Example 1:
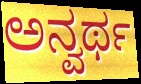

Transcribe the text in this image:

ಅನ್ವರ್ಥ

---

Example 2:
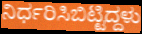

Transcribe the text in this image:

ನಿರ್ಧರಿಸಿಬಿಟ್ಟಿದ್ದಳು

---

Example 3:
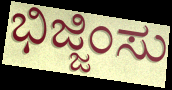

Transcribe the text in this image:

ಭಿಜ್ಜಿಂಸು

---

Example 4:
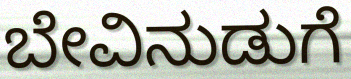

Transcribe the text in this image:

ಬೇವಿನುಡುಗೆ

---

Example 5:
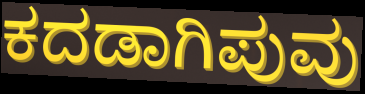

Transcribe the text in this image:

ಕದಡಾಗಿಪುವು